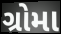
ગ્રોમા